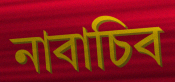
নাবাচিব